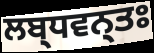
ਲਬ੍ਧਵਨ੍ਤਃ